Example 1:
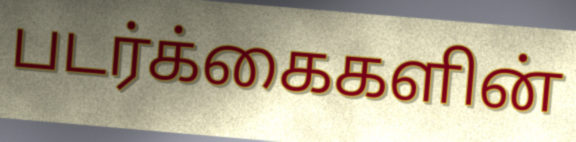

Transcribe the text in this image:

படர்க்கைகளின்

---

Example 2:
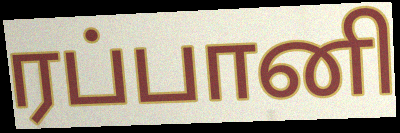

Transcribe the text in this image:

ரப்பானி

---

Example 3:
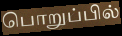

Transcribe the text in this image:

பொறுப்பில்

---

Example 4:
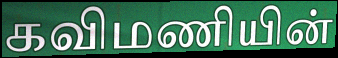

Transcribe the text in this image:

கவிமணியின்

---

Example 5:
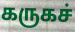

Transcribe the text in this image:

கருகச்